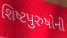
શિષ્ટપુરુષોની